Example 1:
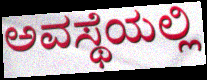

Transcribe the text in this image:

ಅವಸ್ಥೆಯಲ್ಲಿ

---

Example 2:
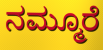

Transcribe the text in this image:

ನಮ್ಮೂರೆ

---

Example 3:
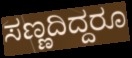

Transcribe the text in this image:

ಸಣ್ಣದಿದ್ದರೂ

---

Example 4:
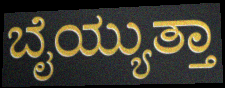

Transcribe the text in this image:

ಬೈಯ್ಯುತ್ತಾ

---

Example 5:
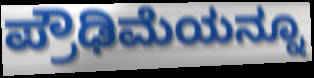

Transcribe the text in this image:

ಪ್ರೌಢಿಮೆಯನ್ನೂ